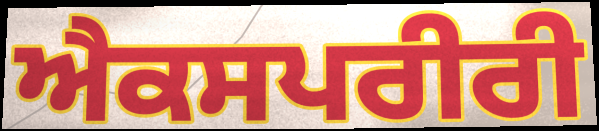
ਐਕਸਪਰੀਰੀ